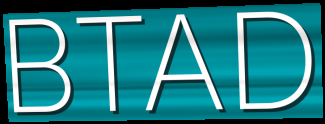
BTAD